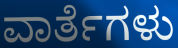
ವಾರ್ತೆಗಳು